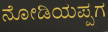
ನೋಡಿಯಪ್ಪಗ